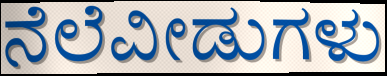
ನೆಲೆವೀಡುಗಳು